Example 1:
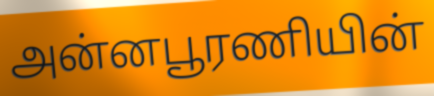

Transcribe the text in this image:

அன்னபூரணியின்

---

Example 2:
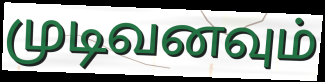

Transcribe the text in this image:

முடிவனவும்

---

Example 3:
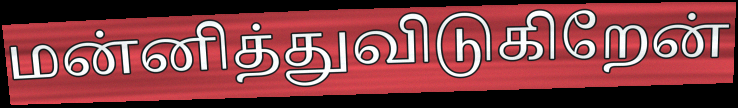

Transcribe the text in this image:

மன்னித்துவிடுகிறேன்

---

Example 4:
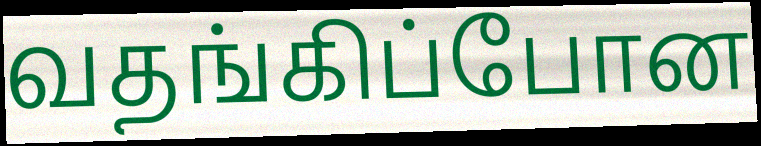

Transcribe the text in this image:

வதங்கிப்போன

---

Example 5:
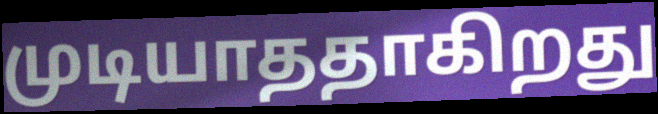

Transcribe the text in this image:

முடியாததாகிறது